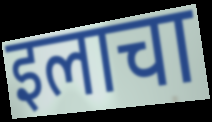
इलाचा